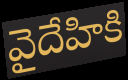
వైదేహికి